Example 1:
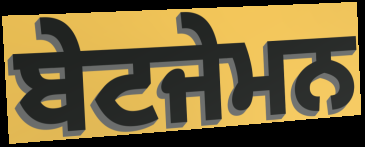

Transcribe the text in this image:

ਬੇਟਜੇਮਨ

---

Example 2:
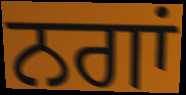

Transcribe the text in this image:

ਨਗਾਂ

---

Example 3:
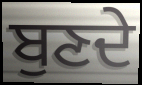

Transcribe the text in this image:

ਬੁਣਦੇ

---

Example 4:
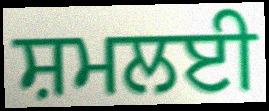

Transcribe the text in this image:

ਸ਼ਮਲਈ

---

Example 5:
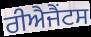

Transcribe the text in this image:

ਰੀਐਜੈਂਟਸ